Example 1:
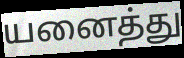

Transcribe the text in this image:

யனைத்து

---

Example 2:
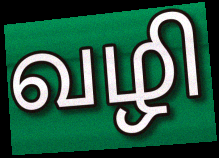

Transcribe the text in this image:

வழி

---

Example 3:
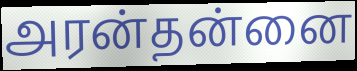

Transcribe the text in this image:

அரன்தன்னை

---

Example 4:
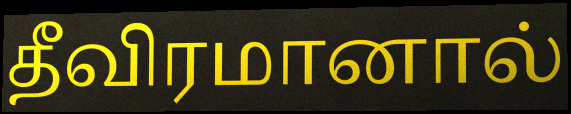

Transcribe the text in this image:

தீவிரமானால்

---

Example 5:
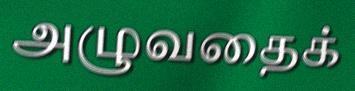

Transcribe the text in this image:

அழுவதைக்